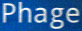
Phage